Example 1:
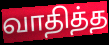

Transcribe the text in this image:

வாதித்த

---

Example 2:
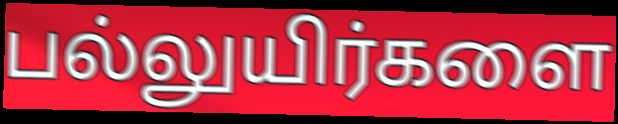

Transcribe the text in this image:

பல்லுயிர்களை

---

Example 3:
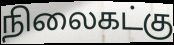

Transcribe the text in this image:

நிலைகட்கு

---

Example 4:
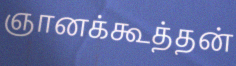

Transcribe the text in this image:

ஞானக்கூத்தன்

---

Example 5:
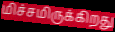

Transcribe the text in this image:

மிச்சமிருக்கிறது